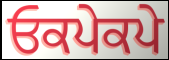
ਓਕਪੇਕਪੇ